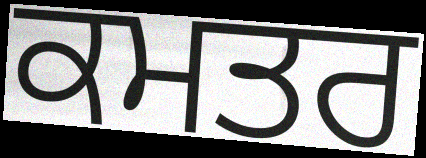
ਕਮਤਰ